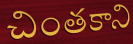
చింతకాని